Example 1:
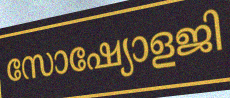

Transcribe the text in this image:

സോഷ്യോളജി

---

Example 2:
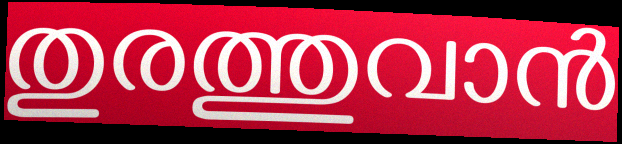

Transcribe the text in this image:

തുരത്തുവാൻ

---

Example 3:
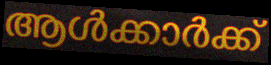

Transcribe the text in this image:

ആൾക്കാർക്ക്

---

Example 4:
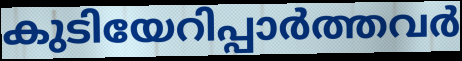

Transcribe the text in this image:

കുടിയേറിപ്പാർത്തവർ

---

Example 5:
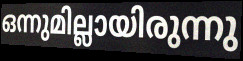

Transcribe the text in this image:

ഒന്നുമില്ലായിരുന്നു